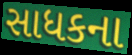
સાધકના